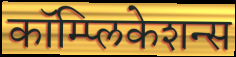
कॉम्प्लिकेशन्स